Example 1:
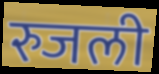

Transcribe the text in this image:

रुजली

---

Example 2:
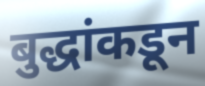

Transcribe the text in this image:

बुद्धांकडून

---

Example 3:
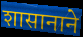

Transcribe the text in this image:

शासानाने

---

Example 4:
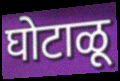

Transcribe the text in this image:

घोटाळू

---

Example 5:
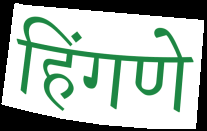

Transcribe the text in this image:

हिंगणे